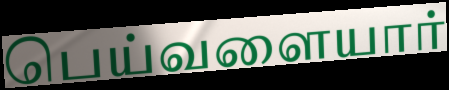
பெய்வளையார்